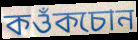
কওঁকচোন